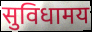
सुविधामय